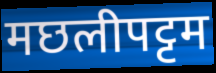
मछलीपट्टम